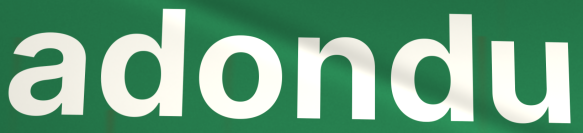
adondu